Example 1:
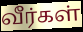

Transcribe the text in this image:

வீர்கள்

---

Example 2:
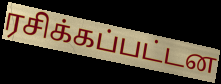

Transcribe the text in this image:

ரசிக்கப்பட்டன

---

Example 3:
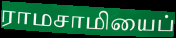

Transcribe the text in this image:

ராமசாமியைப்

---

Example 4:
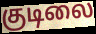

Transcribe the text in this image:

குடிலை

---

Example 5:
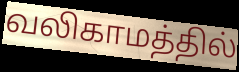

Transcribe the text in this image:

வலிகாமத்தில்